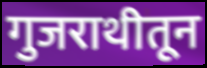
गुजराथीतून